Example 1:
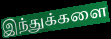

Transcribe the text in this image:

இந்துக்களை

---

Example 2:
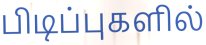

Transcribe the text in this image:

பிடிப்புகளில்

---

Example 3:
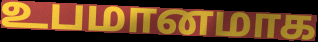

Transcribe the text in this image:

உபமானமாக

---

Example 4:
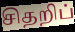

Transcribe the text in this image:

சிதறிப்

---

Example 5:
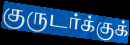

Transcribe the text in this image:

குருடர்க்குக்